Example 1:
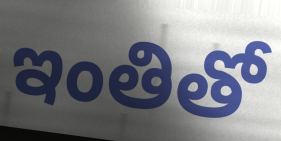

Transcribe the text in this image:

ఇంతితో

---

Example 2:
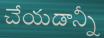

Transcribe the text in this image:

చేయడాన్నీ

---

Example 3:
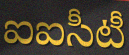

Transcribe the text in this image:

ఐఐసీటీ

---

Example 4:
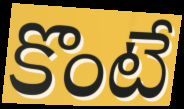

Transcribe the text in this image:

కొంటే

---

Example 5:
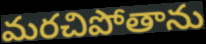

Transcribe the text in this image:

మరచిపోతాను